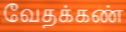
வேதக்கண்